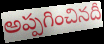
అప్పగించినదీ